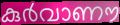
കുർവാണൗ